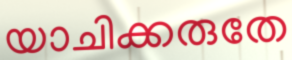
യാചിക്കരുതേ